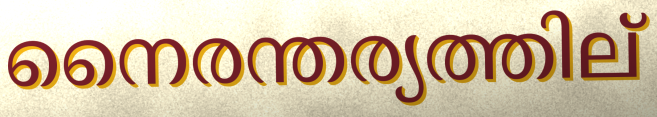
നൈരന്തര്യത്തില്